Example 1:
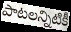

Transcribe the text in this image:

పాటలన్నిటికీ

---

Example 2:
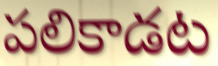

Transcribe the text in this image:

పలికాడట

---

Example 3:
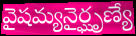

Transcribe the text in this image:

వైషమ్యనైర్ఘృణ్యే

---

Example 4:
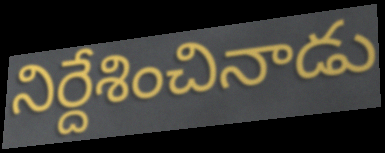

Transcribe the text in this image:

నిర్దేశించినాడు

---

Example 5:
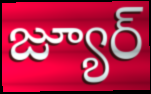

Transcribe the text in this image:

జ్యూర్